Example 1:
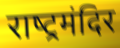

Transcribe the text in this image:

राष्ट्रमंदिर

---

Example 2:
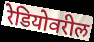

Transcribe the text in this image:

रेडियोवरील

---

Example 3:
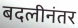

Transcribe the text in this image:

बदलीनंतर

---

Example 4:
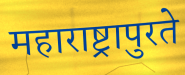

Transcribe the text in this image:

महाराष्ट्रापुरते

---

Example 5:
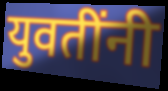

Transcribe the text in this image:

युवतींनी